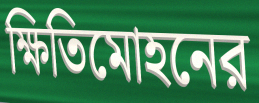
ক্ষিতিমোহনের